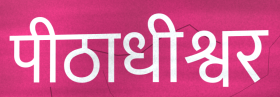
पीठाधीश्वर